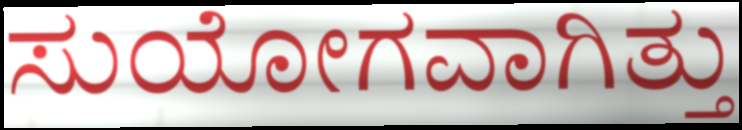
ಸುಯೋಗವಾಗಿತ್ತು